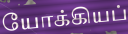
யோக்கியப்